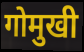
गोमुखी